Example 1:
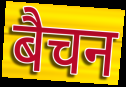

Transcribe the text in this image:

बैचन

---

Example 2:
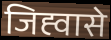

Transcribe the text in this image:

जिह्वासे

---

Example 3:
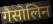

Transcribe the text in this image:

गैसोलिन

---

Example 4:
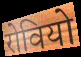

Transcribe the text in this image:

रोवियो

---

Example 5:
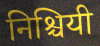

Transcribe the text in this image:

निश्चियी